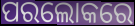
ପରଲୋକରେ